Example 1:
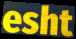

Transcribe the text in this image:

esht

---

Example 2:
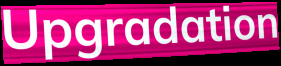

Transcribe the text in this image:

Upgradation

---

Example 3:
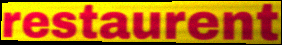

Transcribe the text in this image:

restaurent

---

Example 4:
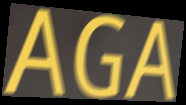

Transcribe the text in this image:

AGA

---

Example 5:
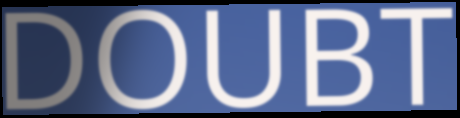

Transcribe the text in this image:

DOUBT